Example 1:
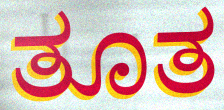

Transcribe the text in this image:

ತೂತ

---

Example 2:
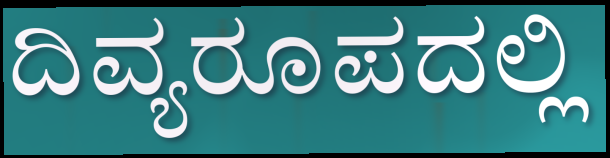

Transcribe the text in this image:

ದಿವ್ಯರೂಪದಲ್ಲಿ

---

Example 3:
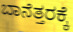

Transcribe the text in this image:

ಬಾನೆತ್ತರಕ್ಕೆ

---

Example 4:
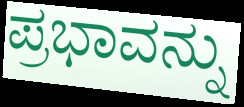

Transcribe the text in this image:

ಪ್ರಭಾವನ್ನು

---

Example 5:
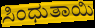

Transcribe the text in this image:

ಸಿಂಧುತಾಯಿ